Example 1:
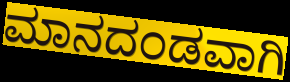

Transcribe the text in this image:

ಮಾನದಂಡವಾಗಿ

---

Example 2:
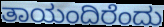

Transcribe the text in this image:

ತಾಯಂದಿರೆಂದು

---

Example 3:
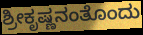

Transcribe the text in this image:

ಶ್ರೀಕೃಷ್ಣನಂತೊಂದು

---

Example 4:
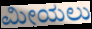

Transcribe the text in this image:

ಮೀಯಲು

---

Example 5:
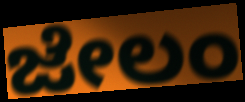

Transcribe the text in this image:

ಜೇಲಂ